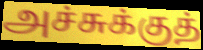
அச்சுக்குத்